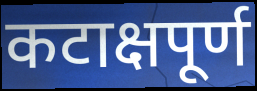
कटाक्षपूर्ण